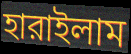
হারাইলাম